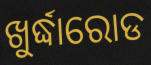
ଖୁର୍ଦ୍ଧାରୋଡ